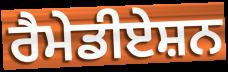
ਰੈਮੇਡੀਏਸ਼ਨ